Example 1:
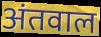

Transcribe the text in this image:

अंतवाल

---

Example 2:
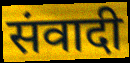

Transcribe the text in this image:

संवादी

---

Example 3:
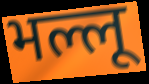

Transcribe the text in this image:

भल्लू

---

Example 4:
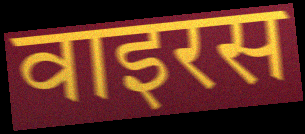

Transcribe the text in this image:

वाइरस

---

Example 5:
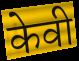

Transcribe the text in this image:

केवी